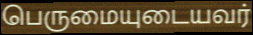
பெருமையுடையவர்